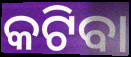
କଟିବା